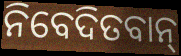
ନିବେଦିତବାନ୍